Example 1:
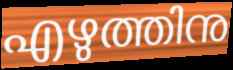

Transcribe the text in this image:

എഴുത്തിനു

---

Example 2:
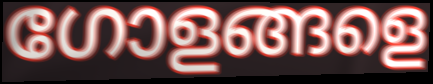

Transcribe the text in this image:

ഗോളങ്ങളെ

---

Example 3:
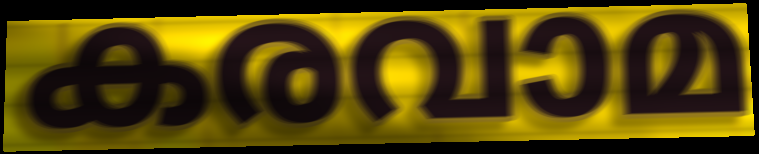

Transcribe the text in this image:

കരവാമ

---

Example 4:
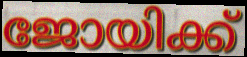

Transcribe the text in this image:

ജോയിക്ക്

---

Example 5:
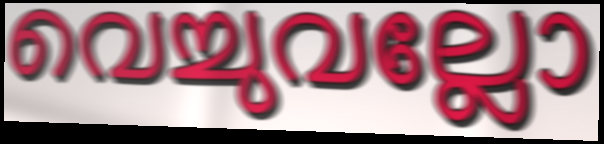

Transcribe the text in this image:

വെച്ചുവല്ലോ